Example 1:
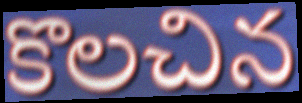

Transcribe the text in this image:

కొలచిన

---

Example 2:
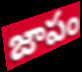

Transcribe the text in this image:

జాపం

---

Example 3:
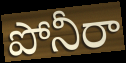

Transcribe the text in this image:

పోనీరా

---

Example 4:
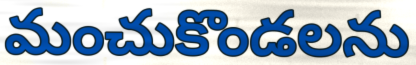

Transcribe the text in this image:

మంచుకొండలను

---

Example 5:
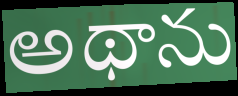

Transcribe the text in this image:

అథాను